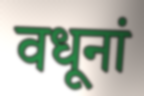
वधूनां